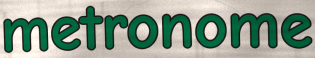
metronome